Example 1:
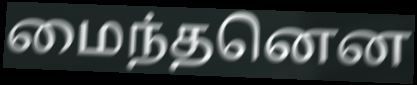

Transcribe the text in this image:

மைந்தனென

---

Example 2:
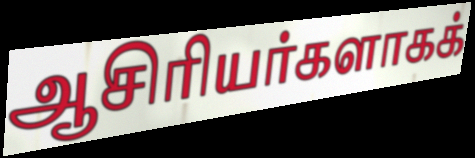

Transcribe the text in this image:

ஆசிரியர்களாகக்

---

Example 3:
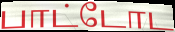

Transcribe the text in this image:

பாட்டோட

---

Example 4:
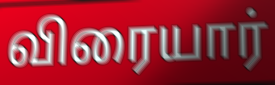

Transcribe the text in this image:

விரையார்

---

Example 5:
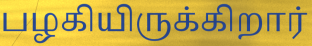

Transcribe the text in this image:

பழகியிருக்கிறார்